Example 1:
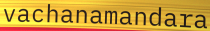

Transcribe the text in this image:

vachanamandara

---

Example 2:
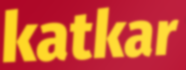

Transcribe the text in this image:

katkar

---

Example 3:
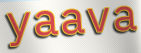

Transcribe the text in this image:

yaava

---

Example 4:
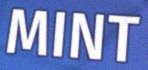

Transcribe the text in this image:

MINT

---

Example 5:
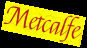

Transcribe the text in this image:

Metcalfe